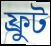
ফ্রুট